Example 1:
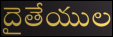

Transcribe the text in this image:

దైతేయుల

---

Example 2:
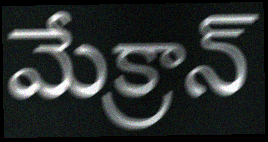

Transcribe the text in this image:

మేక్రాన్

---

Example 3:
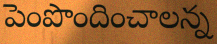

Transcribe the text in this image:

పెంపొందించాలన్న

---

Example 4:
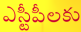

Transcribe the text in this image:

ఎస్టీపీలకు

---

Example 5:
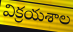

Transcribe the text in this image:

విక్రయశాల